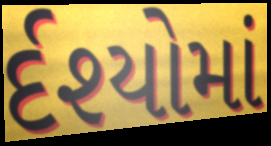
ર્દશ્યોમાં